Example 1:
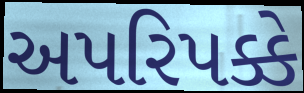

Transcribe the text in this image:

અપરિપક્કે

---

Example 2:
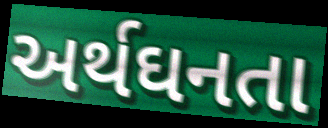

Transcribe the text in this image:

અર્થઘનતા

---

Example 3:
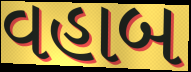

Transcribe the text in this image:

વહાબ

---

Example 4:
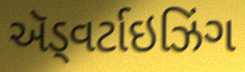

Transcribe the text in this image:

ઍડ્વર્ટાઇઝિંગ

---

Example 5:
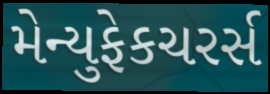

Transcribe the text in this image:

મેન્યુફેકચરર્સ